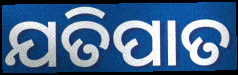
ଯତିପାତ